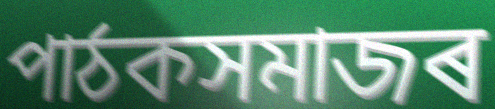
পাঠকসমাজৰ